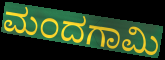
ಮಂದಗಾಮಿ